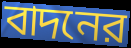
বাদনের